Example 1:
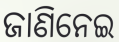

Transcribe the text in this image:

ଜାଣିନେଇ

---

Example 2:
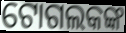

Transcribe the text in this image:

ଟୋଗଲକଙ୍କ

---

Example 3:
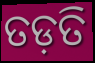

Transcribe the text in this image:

ତଡ଼ତି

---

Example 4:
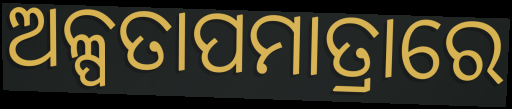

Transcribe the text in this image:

ଅଳ୍ପତାପମାତ୍ରାରେ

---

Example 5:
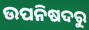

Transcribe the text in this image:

ଉପନିଷଦରୁ